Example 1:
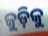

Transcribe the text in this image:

ଜୁଡ଼ିକୁ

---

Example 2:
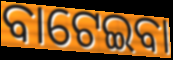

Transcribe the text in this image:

ବାଟେଇବା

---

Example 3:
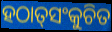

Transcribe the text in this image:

ହଠାତ୍‌ସଂକୁଚିତ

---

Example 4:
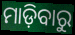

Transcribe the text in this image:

ମାଡ଼ିବାରୁ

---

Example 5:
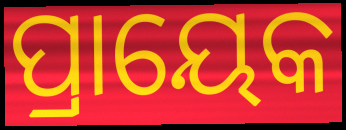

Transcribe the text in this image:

ପ୍ରାୟେକ